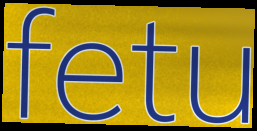
fetu